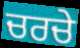
ਚਰਚੇ